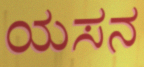
ಯಸನ